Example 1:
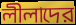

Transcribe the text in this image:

লীলাদের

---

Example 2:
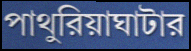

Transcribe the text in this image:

পাথুরিয়াঘাটার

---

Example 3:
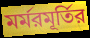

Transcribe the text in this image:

মর্মরমূর্তির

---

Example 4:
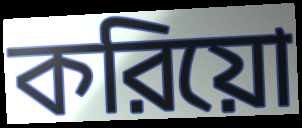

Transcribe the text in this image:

করিয়ো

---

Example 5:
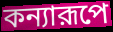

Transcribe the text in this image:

কন্যারূপে